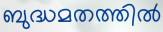
ബുദ്ധമതത്തിൽ